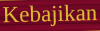
Kebajikan